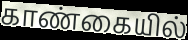
காண்கையில்